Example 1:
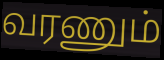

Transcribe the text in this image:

வரணும்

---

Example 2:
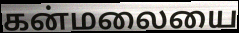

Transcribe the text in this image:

கன்மலையை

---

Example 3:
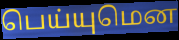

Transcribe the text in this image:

பெய்யுமென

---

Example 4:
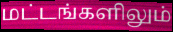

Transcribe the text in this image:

மட்டங்களிலும்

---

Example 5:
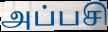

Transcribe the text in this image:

அப்பசி